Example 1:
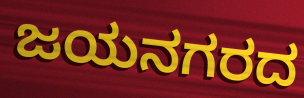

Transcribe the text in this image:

ಜಯನಗರದ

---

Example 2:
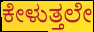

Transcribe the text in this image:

ಕೇಳುತ್ತಲೇ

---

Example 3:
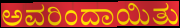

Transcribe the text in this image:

ಅವರಿಂದಾಯಿತು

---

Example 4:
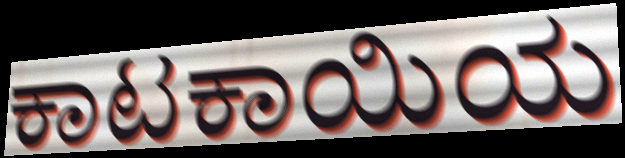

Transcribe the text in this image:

ಕಾಟಕಾಯಿಯ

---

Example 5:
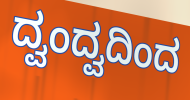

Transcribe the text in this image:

ದ್ವಂದ್ವದಿಂದ